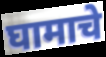
घामाचे